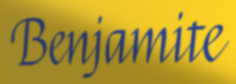
Benjamite